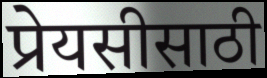
प्रेयसीसाठी